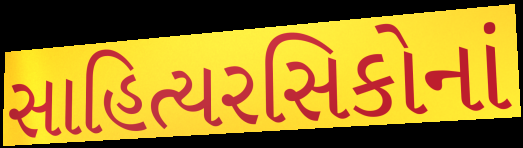
સાહિત્યરસિકોનાં